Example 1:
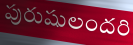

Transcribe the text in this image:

పురుషులందరి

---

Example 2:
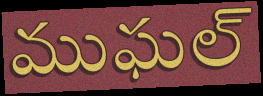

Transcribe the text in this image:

ముఘల్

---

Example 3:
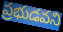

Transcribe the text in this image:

ప్రభుడవని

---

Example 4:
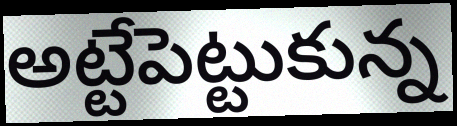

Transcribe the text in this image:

అట్టేపెట్టుకున్న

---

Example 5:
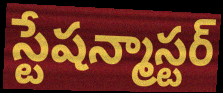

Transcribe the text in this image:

స్టేషన్మాస్టర్